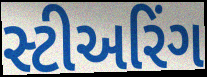
સ્ટીઅરિંગ